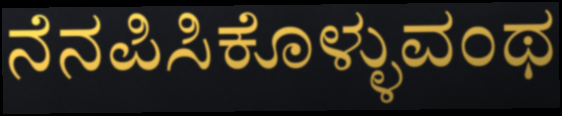
ನೆನಪಿಸಿಕೊಳ್ಳುವಂಥ